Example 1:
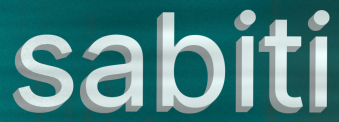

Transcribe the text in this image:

sabiti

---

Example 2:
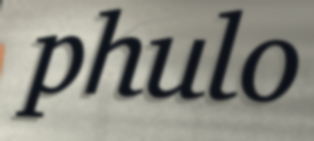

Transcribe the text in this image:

phulo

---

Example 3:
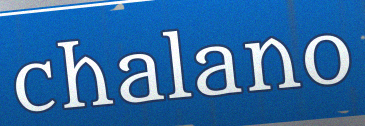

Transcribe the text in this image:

chalano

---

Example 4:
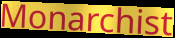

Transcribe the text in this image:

Monarchist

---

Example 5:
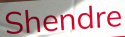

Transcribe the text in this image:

Shendre